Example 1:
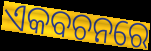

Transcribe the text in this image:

ଏକବଚନରେ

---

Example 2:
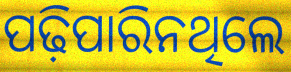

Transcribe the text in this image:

ପଢ଼ିପାରିନଥିଲେ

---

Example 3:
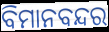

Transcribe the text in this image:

ବିମାନବନ୍ଦର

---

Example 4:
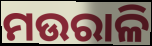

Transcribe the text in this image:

ମଉରାଳି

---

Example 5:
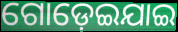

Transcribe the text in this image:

ଗୋଡ଼େଇଯାଇ